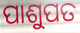
ପାଶୁପତ